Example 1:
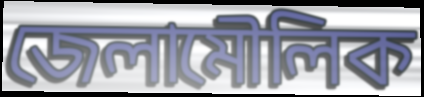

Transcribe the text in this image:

জেলামৌলিক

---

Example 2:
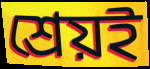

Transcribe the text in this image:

শ্রেয়ই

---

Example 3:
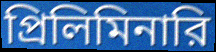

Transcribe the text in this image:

প্রিলিমিনারি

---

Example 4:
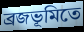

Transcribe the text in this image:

ব্রজভূমিতে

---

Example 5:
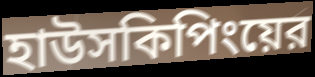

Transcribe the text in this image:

হাউসকিপিংয়ের